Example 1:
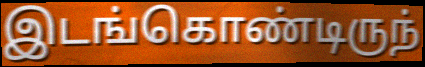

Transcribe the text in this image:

இடங்கொண்டிருந்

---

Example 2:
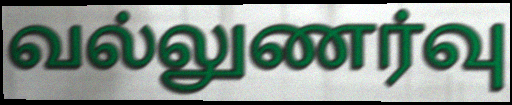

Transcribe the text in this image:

வல்லுணர்வு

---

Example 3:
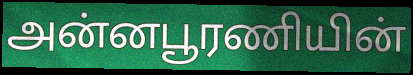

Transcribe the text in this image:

அன்னபூரணியின்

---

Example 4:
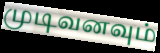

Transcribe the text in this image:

முடிவனவும்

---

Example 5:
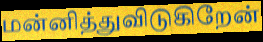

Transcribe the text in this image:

மன்னித்துவிடுகிறேன்